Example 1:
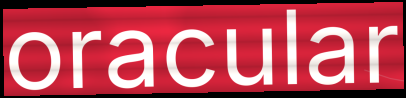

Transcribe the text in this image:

oracular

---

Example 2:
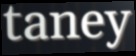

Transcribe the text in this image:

taney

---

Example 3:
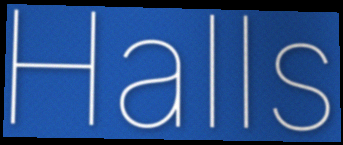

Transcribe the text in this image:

Halls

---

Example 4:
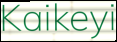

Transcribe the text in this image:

Kaikeyi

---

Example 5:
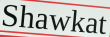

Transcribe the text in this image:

Shawkat